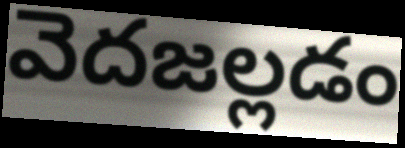
వెదజల్లడం